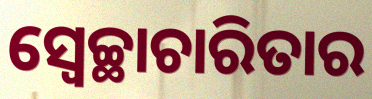
ସ୍ୱେଚ୍ଛାଚାରିତାର